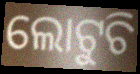
ଲୋଟୁଚି